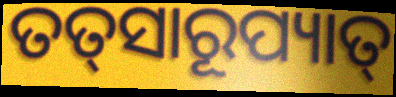
ତତ୍‌ସାରୂପ୍ୟାତ୍